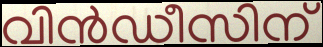
വിൻഡീസിന്